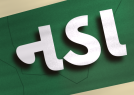
નડા